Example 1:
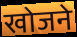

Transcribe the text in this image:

खोजने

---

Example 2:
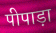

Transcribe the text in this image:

पीपाड़ा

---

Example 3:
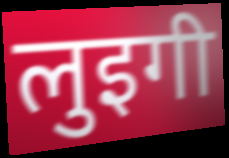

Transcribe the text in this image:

लुइगी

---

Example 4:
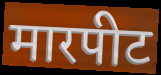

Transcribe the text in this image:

मारपीट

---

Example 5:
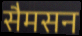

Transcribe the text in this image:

सैमसन